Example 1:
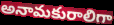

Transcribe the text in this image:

అనామకురాలిగా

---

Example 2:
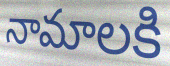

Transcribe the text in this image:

నామాలకి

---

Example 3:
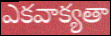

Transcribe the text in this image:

ఎకవాక్యతా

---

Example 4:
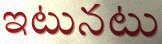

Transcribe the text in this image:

ఇటునటు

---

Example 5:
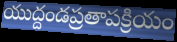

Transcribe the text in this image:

యుద్దండప్రతాపక్రియం